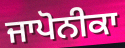
ਜਾਪੋਨੀਕਾ